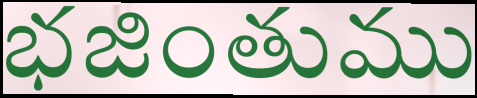
భజింతుము